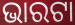
ଭାରଟା